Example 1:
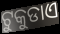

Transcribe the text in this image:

ଟୁକୁଡାଏ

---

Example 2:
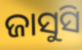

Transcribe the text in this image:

ଜାସୁସି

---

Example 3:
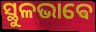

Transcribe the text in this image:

ସ୍ଥୁଳଭାଵେ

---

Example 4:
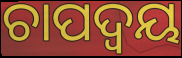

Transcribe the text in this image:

ଚାପଦ୍ଵୟ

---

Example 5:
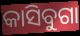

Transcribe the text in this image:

କାସିବୁଗା